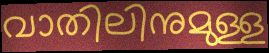
വാതിലിനുമുള്ള